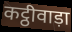
कट्ठीवाड़ा